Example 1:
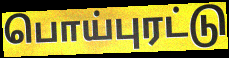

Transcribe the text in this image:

பொய்புரட்டு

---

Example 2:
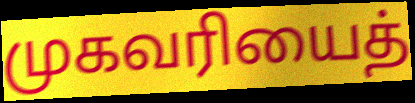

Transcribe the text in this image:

முகவரியைத்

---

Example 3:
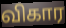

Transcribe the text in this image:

விகார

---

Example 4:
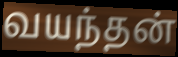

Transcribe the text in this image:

வயந்தன்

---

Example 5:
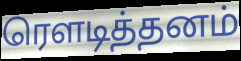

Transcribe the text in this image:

ரௌடித்தனம்